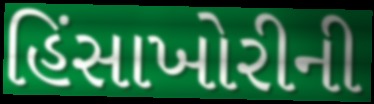
હિંસાખોરીની